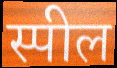
स्पील